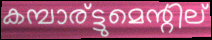
കമ്പാര്ട്ടുമെന്റില്